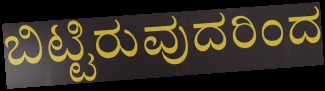
ಬಿಟ್ಟಿರುವುದರಿಂದ